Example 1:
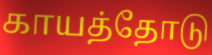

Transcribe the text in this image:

காயத்தோடு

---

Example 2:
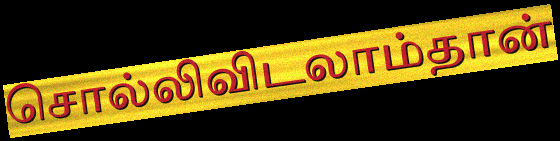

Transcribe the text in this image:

சொல்லிவிடலாம்தான்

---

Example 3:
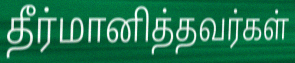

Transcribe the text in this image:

தீர்மானித்தவர்கள்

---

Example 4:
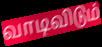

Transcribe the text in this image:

வாடிவிடும்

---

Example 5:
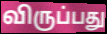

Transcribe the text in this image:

விருப்பது